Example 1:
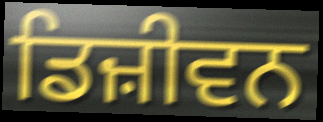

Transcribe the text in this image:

ਡਿਜ਼ੀਵਨ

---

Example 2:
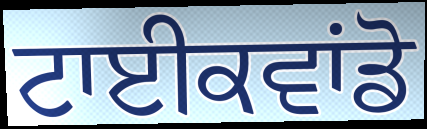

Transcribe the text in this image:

ਟਾਈਕਵਾਂਡੋ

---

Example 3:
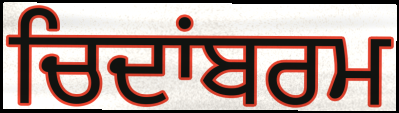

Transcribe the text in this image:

ਚਿਦਾਂਬਰਮ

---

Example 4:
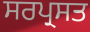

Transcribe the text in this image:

ਸਰਪ੍ਰਸਤ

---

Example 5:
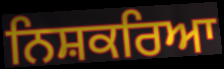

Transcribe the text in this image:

ਨਿਸ਼ਕਰਿਆ